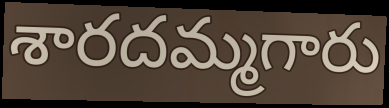
శారదమ్మగారు